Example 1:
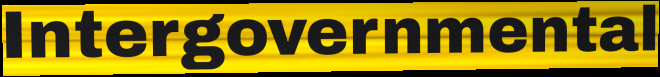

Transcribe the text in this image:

Intergovernmental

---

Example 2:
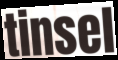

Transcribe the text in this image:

tinsel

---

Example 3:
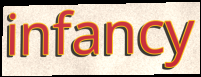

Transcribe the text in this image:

infancy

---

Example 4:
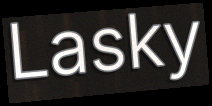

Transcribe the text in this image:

Lasky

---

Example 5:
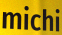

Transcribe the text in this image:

michi